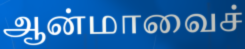
ஆன்மாவைச்